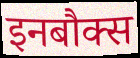
इनबौक्स